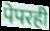
पेपरही